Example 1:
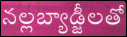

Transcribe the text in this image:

నల్లబ్యాడ్జీలతో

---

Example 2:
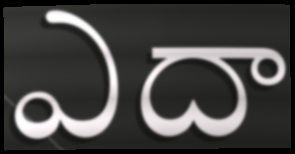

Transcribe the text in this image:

ఎదా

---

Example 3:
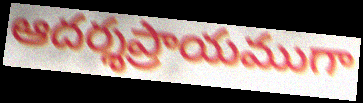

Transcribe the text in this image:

ఆదర్శప్రాయముగా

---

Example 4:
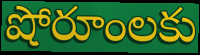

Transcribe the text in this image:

షోరూంలకు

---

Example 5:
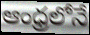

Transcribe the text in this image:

ఆంధ్రలోనే